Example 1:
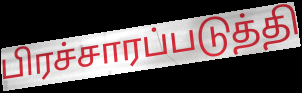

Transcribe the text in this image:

பிரச்சாரப்படுத்தி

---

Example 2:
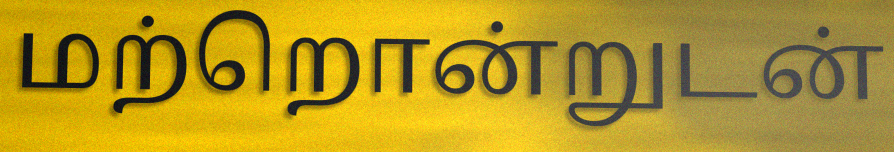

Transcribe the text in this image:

மற்றொன்றுடன்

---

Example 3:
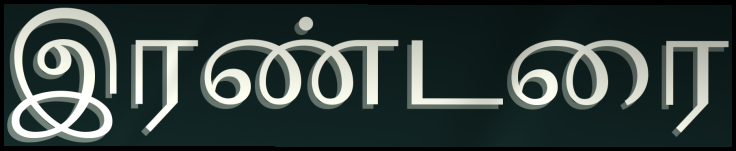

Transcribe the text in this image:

இரண்டரை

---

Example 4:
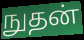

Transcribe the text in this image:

நுதன்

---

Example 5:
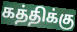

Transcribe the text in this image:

கத்திக்கு